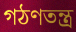
গঠণতন্ত্র